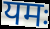
यमः